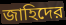
জাহিদের